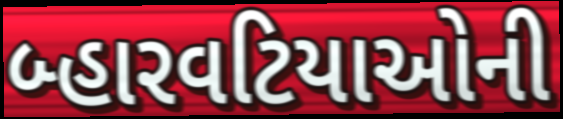
બ્હારવટિયાઓની